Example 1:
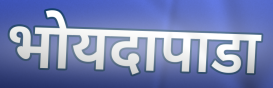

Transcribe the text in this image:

भोयदापाडा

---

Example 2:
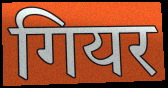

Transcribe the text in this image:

गियर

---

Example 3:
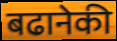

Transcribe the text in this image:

बढानेकी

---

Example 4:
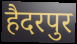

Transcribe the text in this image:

हैदरपुर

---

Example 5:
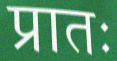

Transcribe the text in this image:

प्रातः